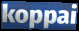
koppai